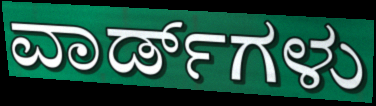
ವಾರ್ಡ್‌ಗಳು